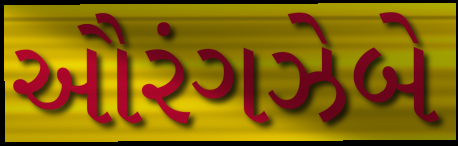
ઔરંગઝેબે